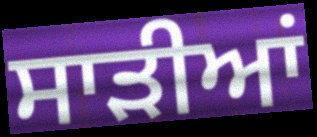
ਸਾਡ਼ੀਆਂ